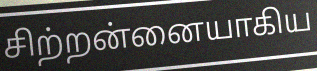
சிற்றன்னையாகிய